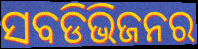
ସବଡିଭିଜନର